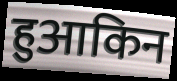
हुआकिन